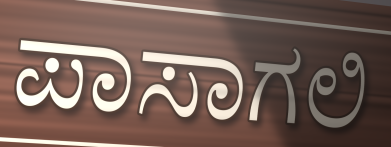
ಪಾಸಾಗಲಿ